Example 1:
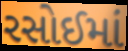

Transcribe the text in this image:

રસોઈમાં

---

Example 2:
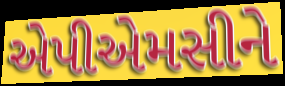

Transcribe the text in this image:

એપીએમસીને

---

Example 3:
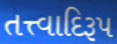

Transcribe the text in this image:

તત્ત્વાદિરૂપ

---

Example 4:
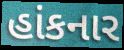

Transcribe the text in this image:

હાંકનાર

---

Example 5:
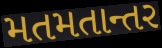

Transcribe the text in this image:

મતમતાન્તર